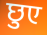
छुए